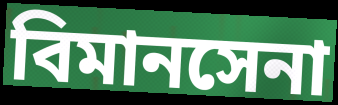
বিমানসেনা